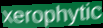
xerophytic